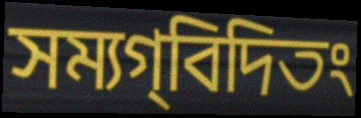
সম্যগ্‌বিদিতং